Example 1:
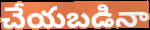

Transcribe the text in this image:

చేయబడినా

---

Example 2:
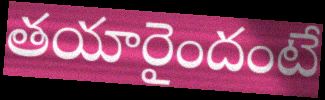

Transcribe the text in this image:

తయారైందంటే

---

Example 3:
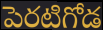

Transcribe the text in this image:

పెరటిగోడ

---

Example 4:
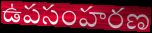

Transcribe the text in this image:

ఉపసంహరణ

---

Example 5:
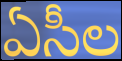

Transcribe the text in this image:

ఏసీల